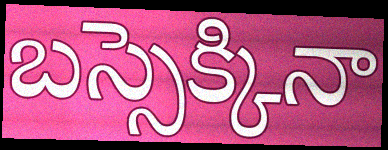
బస్సెక్కినా